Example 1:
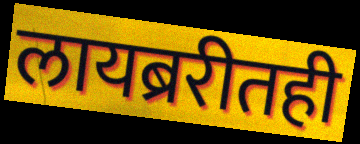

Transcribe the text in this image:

लायब्ररीतही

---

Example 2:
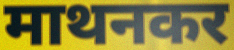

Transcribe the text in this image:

माथनकर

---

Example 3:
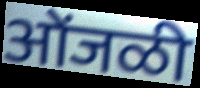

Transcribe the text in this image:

ओंजळी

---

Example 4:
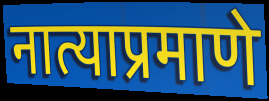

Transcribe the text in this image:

नात्याप्रमाणे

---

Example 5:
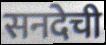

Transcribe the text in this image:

सनदेची